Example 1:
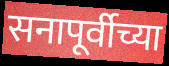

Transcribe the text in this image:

सनापूर्वीच्या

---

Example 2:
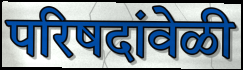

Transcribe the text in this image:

परिषदांवेळी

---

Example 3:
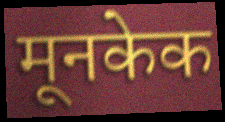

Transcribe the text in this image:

मूनकेक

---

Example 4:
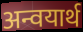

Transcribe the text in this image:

अन्वयार्थ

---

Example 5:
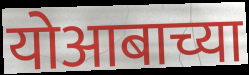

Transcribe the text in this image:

योआबाच्या